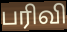
பரிவி